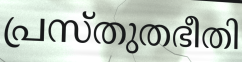
പ്രസ്തുതഭീതി